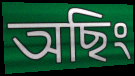
অছিং